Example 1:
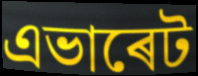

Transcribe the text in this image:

এভাৰেট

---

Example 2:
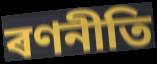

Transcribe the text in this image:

ৰণনীতি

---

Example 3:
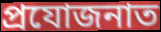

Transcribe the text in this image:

প্ৰযোজনাত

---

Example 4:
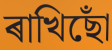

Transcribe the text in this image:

ৰাখিছোঁ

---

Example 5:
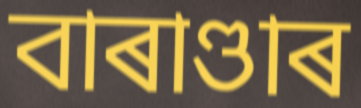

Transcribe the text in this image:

বাৰাণ্ডাৰ